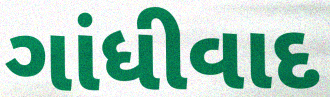
ગાંધીવાદ